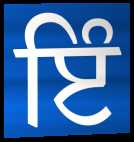
ਇੰ